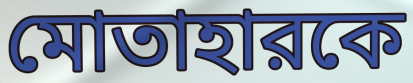
মোতাহারকে